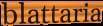
blattaria